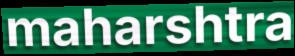
maharshtra